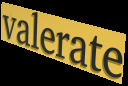
valerate